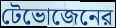
টেভোজেনের